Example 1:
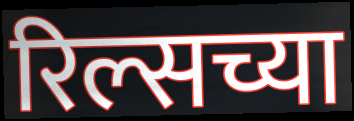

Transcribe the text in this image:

रिल्सच्या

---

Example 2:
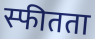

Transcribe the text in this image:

स्फीतता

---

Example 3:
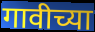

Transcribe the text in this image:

गावीच्या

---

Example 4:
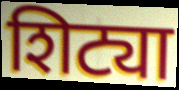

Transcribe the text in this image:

शिट्या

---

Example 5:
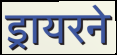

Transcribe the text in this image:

ड्रायरने